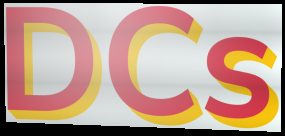
DCs